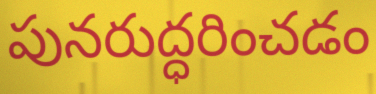
పునరుద్ధరించడం